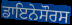
ਡਾਇਨੇਸੌਰਸ